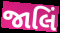
જાલિં